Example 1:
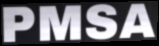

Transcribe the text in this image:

PMSA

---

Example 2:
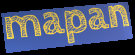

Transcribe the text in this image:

mapan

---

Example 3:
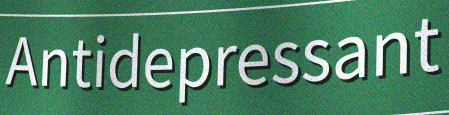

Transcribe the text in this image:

Antidepressant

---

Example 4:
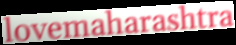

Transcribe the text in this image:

lovemaharashtra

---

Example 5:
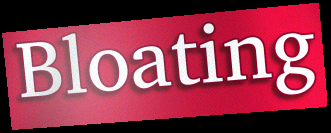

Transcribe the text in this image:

Bloating